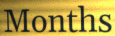
Months